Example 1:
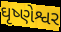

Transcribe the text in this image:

ઘૃષ્ણેશ્વર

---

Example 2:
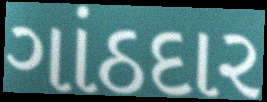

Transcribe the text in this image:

ગાંઠદાર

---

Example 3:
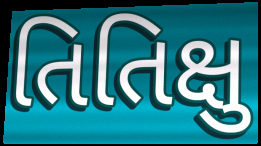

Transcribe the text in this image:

તિતિક્ષુ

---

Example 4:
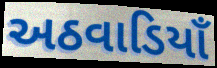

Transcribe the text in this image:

અઠવાડિયાઁ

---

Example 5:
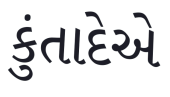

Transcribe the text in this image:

કુંતાદેએ